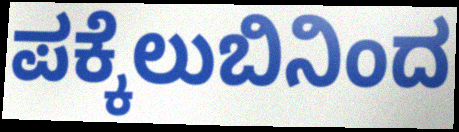
ಪಕ್ಕೆಲುಬಿನಿಂದ